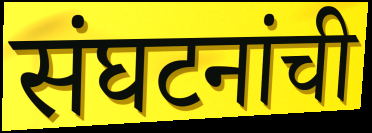
संघटनांची